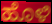
ಹೊಳಿ